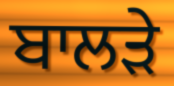
ਬਾਲੜੇ